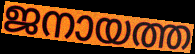
ജനായത്ത